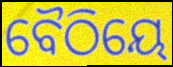
ବୈଠିୟେ